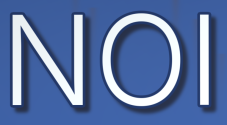
NOI